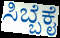
ಸಿಬ್ಬೆಕೈ